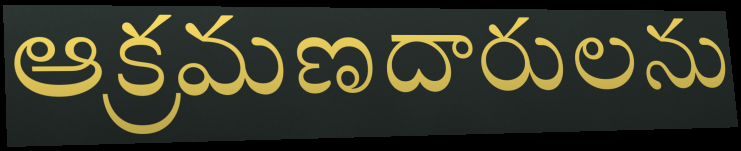
ఆక్రమణదారులను